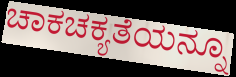
ಚಾಕಚಕ್ಯತೆಯನ್ನೂ